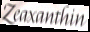
Zeaxanthin